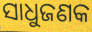
ସାଧୁଜଣକ